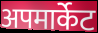
अपमार्केट